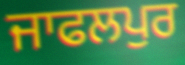
ਜਾਫਲਪੁਰ